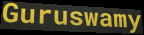
Guruswamy